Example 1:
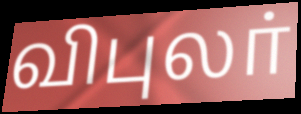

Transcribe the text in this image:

விபுலர்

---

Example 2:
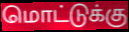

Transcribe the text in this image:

மொட்டுக்கு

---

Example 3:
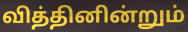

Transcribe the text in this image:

வித்தினின்றும்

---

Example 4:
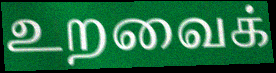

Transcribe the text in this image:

உறவைக்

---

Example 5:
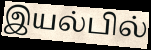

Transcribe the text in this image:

இயல்பில்